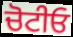
ਚੋਟੀਓ